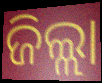
ଜିଲ୍ଲା